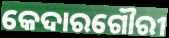
କେଦାରଗୌରୀ